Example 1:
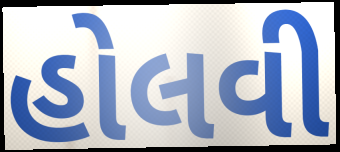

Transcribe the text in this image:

હોલવી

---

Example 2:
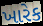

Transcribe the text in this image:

ખારેક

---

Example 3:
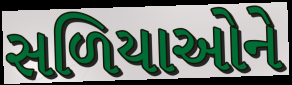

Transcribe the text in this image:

સળિયાઓને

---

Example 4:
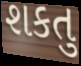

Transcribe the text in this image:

શકતુ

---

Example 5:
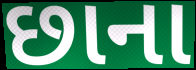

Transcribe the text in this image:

છાના